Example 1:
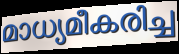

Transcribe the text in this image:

മാധ്യമീകരിച്ച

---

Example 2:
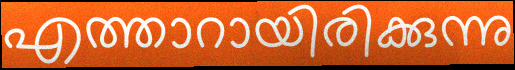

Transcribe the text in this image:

എത്താറായിരിക്കുന്നു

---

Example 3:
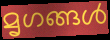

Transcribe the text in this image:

മൃഗങ്ങൾ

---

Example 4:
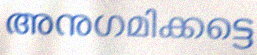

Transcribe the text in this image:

അനുഗമിക്കട്ടെ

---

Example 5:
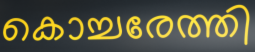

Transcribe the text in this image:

കൊച്ചരേത്തി